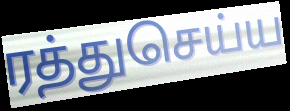
ரத்துசெய்ய